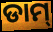
ଡାମ୍